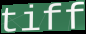
tiff